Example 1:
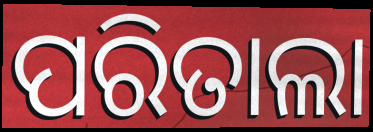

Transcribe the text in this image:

ପରିତାଲା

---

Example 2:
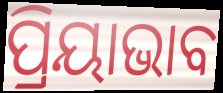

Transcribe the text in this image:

ପ୍ରିୟାଭାବ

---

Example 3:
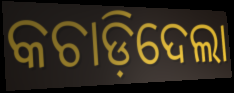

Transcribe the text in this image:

କଚାଡ଼ିଦେଲା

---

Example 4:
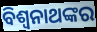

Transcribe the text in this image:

ବିଶ୍ୱନାଥଙ୍କର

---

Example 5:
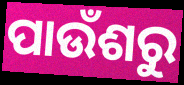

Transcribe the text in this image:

ପାଉଁଶରୁ